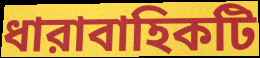
ধারাবাহিকটি